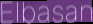
Elbasan